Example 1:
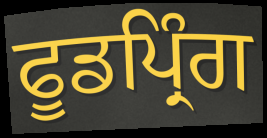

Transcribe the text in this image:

ਫੂਡਪ੍ਰਿੰਗ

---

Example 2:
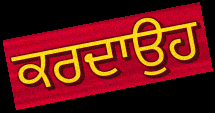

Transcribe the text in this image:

ਕਰਦਾਉਹ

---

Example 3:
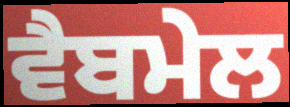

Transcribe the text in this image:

ਵੈਬਮੇਲ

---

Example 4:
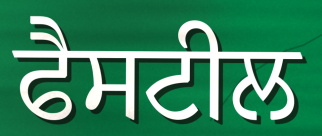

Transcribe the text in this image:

ਫੈਸਟੀਲ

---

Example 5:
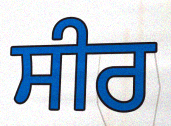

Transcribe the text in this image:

ਸੀਰ